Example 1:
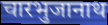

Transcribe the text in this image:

चारभुजानाथ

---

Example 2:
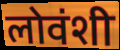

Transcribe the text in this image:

लोवंशी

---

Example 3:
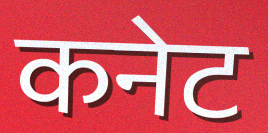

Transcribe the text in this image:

कनेट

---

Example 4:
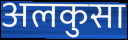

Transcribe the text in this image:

अलकुसा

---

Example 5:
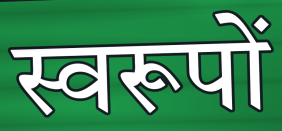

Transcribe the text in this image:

स्वरूपों